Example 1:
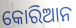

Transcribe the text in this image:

କୋରିଆନ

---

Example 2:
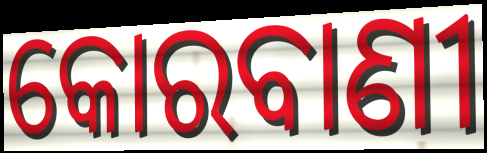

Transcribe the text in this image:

କୋରବାଣୀ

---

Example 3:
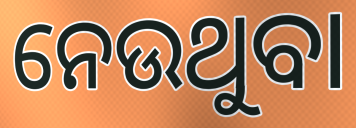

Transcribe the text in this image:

ନେଉଥୁବା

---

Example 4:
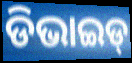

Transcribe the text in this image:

ଡିଭାଇଡ୍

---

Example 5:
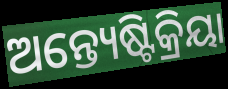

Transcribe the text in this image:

ଅନ୍ତ୍ୟେଷ୍ଟିକ୍ରିୟା